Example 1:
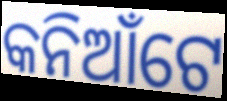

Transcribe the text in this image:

କନିଆଁଟେ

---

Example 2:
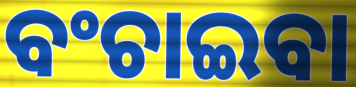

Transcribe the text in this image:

ବଂଚାଇବା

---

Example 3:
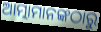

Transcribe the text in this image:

ଆତ୍ମାମାନଙ୍କଠାରୁ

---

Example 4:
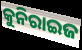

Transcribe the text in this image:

କୁନିରାଇଜ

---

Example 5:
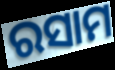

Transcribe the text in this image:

ରସାମ